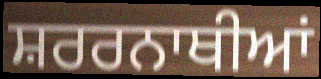
ਸ਼ਰਰਨਾਥੀਆਂ